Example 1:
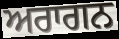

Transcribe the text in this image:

ਅਰਾਗਨ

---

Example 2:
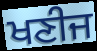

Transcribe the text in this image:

ਖਣੀਜ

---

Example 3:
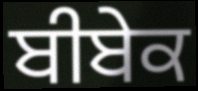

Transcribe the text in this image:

ਬੀਬੇਕ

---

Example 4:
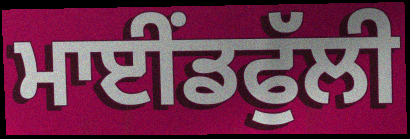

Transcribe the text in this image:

ਮਾਈਂਡਫੁੱਲੀ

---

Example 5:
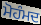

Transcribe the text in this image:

ਮੋਹੰਮਦ